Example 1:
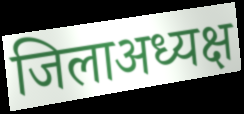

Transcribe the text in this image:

जिलाअध्यक्ष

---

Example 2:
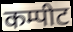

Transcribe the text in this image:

कम्पीट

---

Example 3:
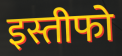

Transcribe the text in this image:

इस्तीफो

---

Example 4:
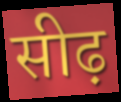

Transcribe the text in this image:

सीढ़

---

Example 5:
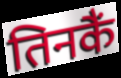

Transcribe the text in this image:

तिनकैं